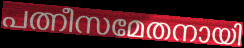
പത്നീസമേതനായി